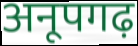
अनूपगढ़